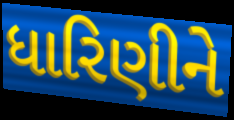
ધારિણીને